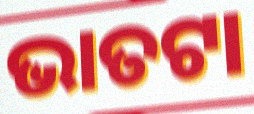
ଭାତଟା